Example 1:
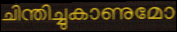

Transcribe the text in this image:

ചിന്തിച്ചുകാണുമോ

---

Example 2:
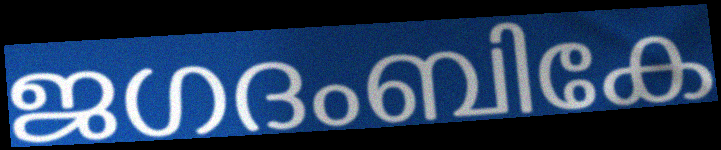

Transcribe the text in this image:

ജഗദംബികേ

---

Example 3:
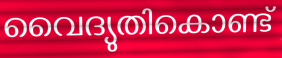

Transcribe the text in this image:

വൈദ്യുതികൊണ്ട്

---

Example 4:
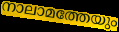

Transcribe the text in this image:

നാലാമത്തേയും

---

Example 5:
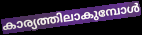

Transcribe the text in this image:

കാര്യത്തിലാകുമ്പോൾ